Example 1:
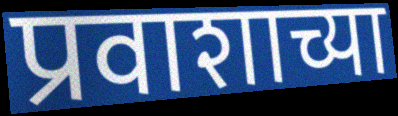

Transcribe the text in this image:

प्रवाशाच्या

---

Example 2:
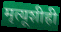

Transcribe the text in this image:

मृत्यूशीही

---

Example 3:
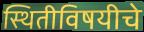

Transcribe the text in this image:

स्थितीविषयीचे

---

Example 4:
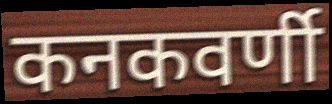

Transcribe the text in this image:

कनकवर्णी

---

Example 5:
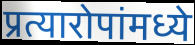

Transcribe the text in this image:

प्रत्यारोपांमध्ये